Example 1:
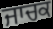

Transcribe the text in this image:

ਜਾਚਕ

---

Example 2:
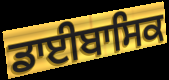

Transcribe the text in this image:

ਡਾਈਬਾਸਿਕ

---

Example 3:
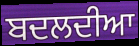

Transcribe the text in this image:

ਬਦਲਦੀਆ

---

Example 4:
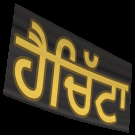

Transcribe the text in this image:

ਹੈਚਿੱਟਾ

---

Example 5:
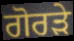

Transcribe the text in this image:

ਗੋਰੜੇ